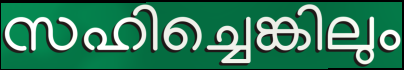
സഹിച്ചെങ്കിലും